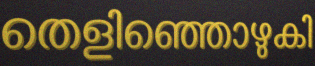
തെളിഞ്ഞൊഴുകി